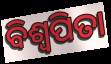
ବିଶ୍ଵପିତା